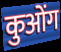
कुओंग